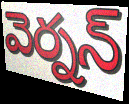
వెర్నన్